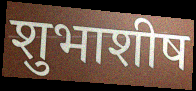
शुभाशीष